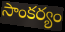
సాంకర్యం